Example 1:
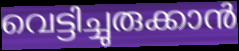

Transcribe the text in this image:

വെട്ടിച്ചുരുക്കാൻ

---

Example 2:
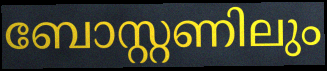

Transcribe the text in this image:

ബോസ്റ്റണിലും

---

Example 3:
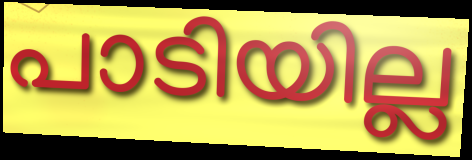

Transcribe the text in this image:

പാടിയില്ല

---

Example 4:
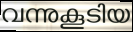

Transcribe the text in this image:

വന്നുകൂടിയ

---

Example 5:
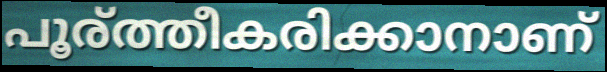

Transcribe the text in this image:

പൂര്ത്തീകരിക്കാനാണ്